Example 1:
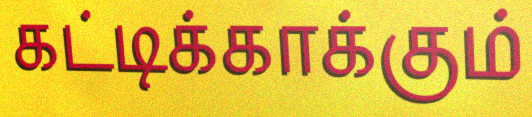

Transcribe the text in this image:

கட்டிக்காக்கும்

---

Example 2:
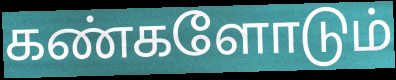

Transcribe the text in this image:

கண்களோடும்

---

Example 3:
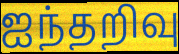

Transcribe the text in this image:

ஐந்தறிவு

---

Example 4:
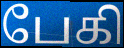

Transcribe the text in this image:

பேகி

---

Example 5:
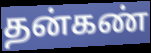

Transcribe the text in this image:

தன்கண்